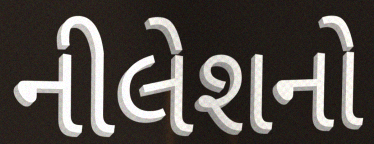
નીલેશનો